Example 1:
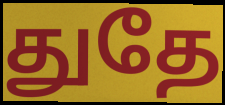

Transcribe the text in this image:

துதே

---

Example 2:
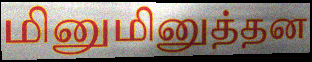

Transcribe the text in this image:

மினுமினுத்தன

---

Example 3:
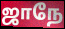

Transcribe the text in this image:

ஜாநே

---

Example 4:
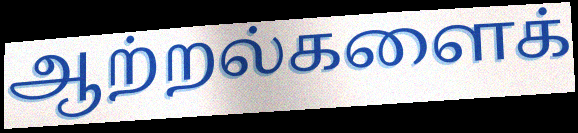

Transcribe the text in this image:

ஆற்றல்களைக்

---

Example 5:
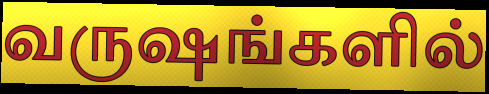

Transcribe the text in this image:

வருஷங்களில்